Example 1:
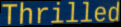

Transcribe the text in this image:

Thrilled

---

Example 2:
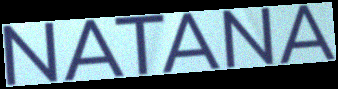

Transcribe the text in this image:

NATANA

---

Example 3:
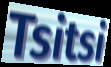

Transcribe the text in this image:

Tsitsi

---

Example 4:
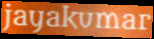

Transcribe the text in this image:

jayakumar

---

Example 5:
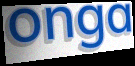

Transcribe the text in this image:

onga